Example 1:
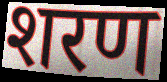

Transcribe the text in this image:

शरण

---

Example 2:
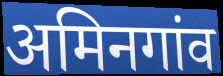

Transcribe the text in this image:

अमिनगांव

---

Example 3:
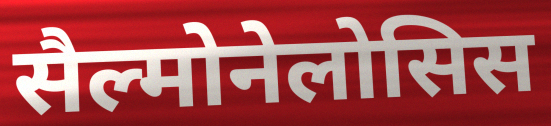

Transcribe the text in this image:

सैल्मोनेलोसिस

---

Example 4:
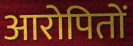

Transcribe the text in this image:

आरोपितों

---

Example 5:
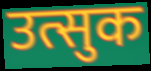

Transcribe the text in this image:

उत्‍सुक